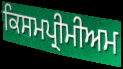
ਕਿਸਮਪ੍ਰੀਮੀਅਮ